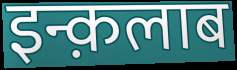
इन्क़लाब